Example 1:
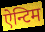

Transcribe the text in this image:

ऐन्टिम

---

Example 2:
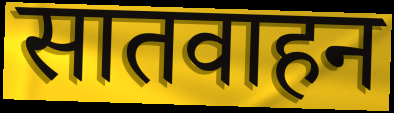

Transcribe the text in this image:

सातवाहन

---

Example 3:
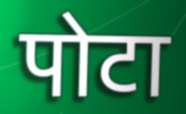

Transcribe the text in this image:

पोटा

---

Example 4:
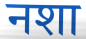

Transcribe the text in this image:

नशा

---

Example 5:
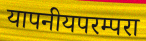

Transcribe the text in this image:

यापनीयपरम्परा